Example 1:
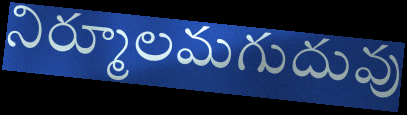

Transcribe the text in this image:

నిర్మూలమగుదువు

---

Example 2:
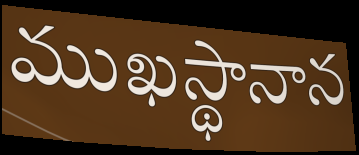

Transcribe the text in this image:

ముఖస్థానాన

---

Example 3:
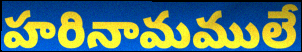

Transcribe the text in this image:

హరినామములే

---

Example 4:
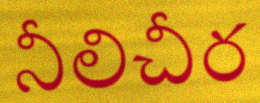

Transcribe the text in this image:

నీలిచీర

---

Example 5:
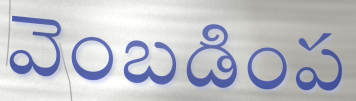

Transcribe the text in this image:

వెంబడింప